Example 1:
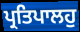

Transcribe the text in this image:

ਪ੍ਰਤਿਪਾਲਹੁ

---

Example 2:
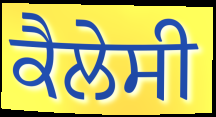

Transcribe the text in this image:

ਕੈਲੇਸੀ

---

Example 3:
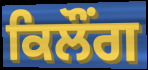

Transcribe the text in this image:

ਕਿਲੌਂਗ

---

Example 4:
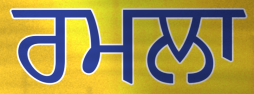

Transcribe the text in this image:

ਰਮਲਾ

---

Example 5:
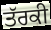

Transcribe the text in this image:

ਤੱਰਕੀ